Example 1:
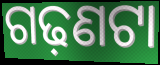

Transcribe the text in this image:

ଗଢ଼ଣଟା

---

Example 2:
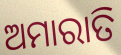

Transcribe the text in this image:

ଅମାରାତି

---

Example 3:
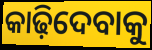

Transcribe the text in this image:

କାଢ଼ିଦେବାକୁ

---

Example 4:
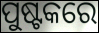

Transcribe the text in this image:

ପୁଷ୍ଟକରେ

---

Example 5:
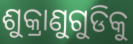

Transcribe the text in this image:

ଶୁକ୍ରାଣୁଗୁଡିକୁ